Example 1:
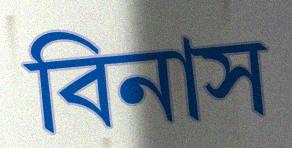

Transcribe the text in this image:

বিনাস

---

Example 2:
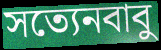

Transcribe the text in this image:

সত্যেনবাবু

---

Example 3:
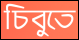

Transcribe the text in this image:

চিবুতে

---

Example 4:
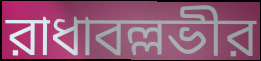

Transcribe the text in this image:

রাধাবল্লভীর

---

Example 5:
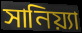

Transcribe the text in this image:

সানিয়্যা